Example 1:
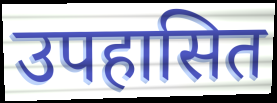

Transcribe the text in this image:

उपहासित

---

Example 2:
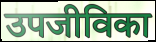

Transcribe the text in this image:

उपजीविका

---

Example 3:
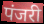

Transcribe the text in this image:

पंजरी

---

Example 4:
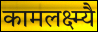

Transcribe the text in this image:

कामलक्ष्म्यै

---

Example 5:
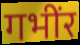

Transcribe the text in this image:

गभींर